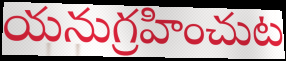
యనుగ్రహించుట